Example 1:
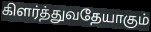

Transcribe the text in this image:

கிளர்த்துவதேயாகும்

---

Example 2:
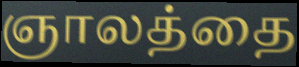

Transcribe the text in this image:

ஞாலத்தை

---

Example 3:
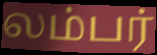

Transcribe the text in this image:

லம்பர்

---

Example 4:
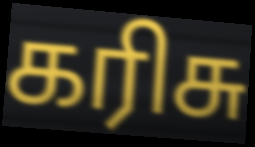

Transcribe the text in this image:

கரிசு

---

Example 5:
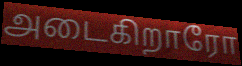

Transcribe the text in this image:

அடைகிறாரோ